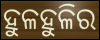
ହୁଳହୁଳିର